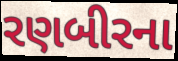
રણબીરના